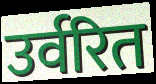
उर्वरित